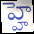
హ్హె